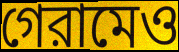
গেরামেও